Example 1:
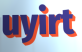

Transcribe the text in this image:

uyirt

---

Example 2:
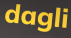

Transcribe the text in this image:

dagli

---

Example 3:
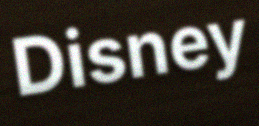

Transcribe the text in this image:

Disney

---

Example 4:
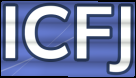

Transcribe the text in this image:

ICFJ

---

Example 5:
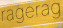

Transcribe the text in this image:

ragerag